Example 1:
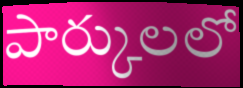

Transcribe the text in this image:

పార్కులలో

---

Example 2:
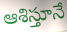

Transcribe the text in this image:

ఆశిస్తూనే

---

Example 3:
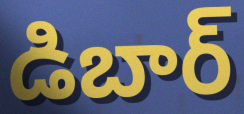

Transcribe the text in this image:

డిబార్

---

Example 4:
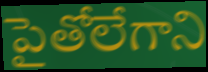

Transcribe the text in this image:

పైతోలేగాని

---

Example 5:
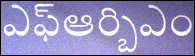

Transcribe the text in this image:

ఎఫ్ఆర్బిఎం